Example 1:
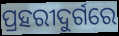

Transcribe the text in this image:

ପ୍ରହରୀଦୁର୍ଗରେ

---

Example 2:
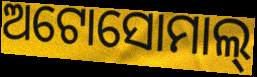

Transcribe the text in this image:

ଅଟୋସୋମାଲ୍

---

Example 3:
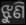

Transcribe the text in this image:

ଝୁଣି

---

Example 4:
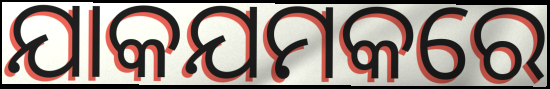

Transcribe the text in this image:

ଯାକଯମକରେ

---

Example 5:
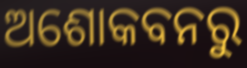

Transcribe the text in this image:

ଅଶୋକବନରୁ